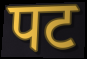
पट